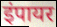
इंपायर